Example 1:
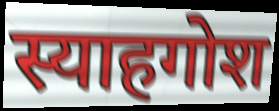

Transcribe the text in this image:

स्याहगोश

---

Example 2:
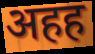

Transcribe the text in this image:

अहह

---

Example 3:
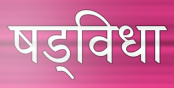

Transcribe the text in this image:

षड्विधा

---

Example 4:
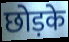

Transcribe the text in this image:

छोड़के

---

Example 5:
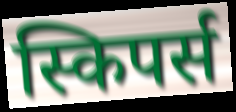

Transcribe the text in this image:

स्किपर्स